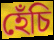
হেঁচি